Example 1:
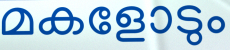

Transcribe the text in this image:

മകളോടും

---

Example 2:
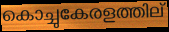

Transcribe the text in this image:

കൊച്ചുകേരളത്തില്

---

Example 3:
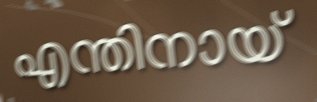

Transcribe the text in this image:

എന്തിനായ്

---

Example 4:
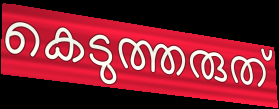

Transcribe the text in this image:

കെടുത്തരുത്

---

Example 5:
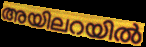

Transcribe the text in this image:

അയിലറയിൽ